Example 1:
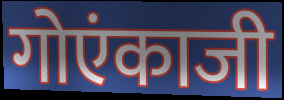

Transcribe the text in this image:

गोएंकाजी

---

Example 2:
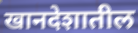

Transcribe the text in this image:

खानदेशातील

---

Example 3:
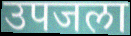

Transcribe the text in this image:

उपजला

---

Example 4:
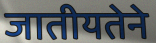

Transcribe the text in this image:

जातीयतेने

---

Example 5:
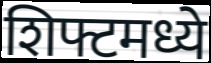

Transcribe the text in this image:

शिफ्टमध्ये